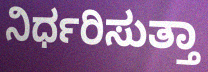
ನಿರ್ಧರಿಸುತ್ತಾ